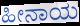
ಹೀನಾಯ